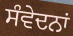
ਸੰਵੇਦਨਾਂ